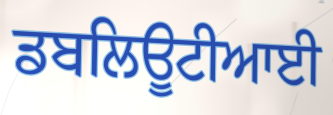
ਡਬਲਿਊਟੀਆਈ